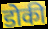
डोकी